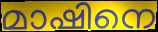
മാഷിനെ